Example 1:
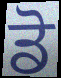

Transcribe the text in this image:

ਡੋ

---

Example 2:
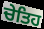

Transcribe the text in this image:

ਚੇਤਿਹ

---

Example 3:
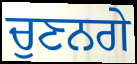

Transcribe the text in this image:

ਚੁਣਨਗੇ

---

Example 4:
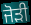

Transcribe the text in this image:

ਜੋੜੀ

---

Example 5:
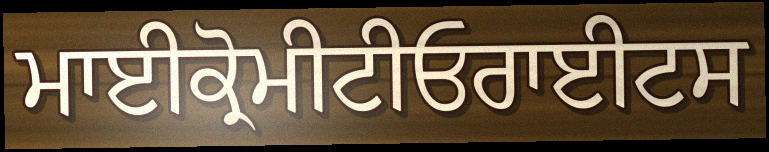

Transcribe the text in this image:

ਮਾਈਕ੍ਰੋਮੀਟੀਓਰਾਈਟਸ